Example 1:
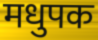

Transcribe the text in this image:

मधुपक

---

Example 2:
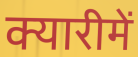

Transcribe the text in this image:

क्यारीमें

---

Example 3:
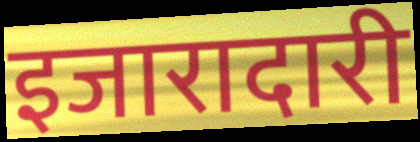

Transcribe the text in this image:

इजारादारी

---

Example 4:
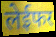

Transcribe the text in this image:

लेईफर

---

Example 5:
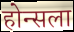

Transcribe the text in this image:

होन्सला